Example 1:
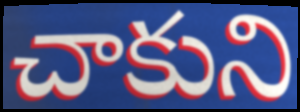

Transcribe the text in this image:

చాకుని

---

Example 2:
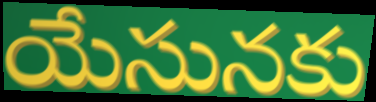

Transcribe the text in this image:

యేసునకు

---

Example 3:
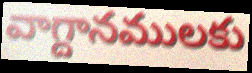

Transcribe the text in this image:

వాగ్దానములకు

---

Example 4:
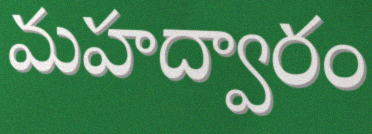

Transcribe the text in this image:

మహద్వారం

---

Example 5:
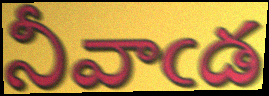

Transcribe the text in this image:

నీవాఁడ